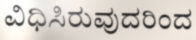
ವಿಧಿಸಿರುವುದರಿಂದ